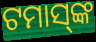
ଟମାସ୍‌ଙ୍କ